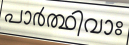
പാർത്ഥിവാഃ